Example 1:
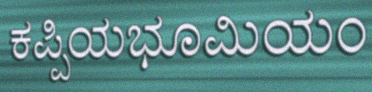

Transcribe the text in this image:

ಕಪ್ಪಿಯಭೂಮಿಯಂ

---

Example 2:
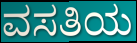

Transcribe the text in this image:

ವಸತಿಯ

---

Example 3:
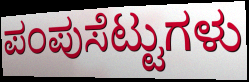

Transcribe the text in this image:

ಪಂಪುಸೆಟ್ಟುಗಳು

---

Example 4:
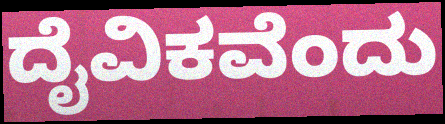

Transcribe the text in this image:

ದೈವಿಕವೆಂದು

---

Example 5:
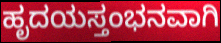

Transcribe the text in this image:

ಹೃದಯಸ್ತಂಭನವಾಗಿ